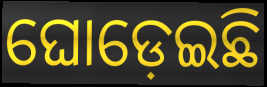
ଘୋଡ଼େଇଛି